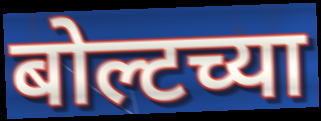
बोल्टच्या